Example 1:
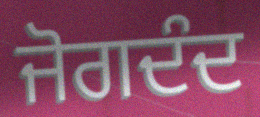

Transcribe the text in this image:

ਜੋਗਦੰਦ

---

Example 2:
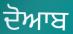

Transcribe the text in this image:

ਦੋਆਬ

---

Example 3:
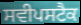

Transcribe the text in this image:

ਸਵੀਪਸਟੈਕ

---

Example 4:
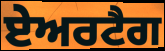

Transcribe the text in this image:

ਏਅਰਟੈਗ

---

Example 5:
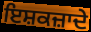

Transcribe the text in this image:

ਇਸ਼ਕਜ਼ਾਦੇ